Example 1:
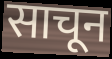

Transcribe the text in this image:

साचून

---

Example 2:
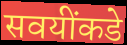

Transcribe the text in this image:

सवयींकडे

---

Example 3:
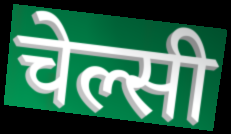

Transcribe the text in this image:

चेल्सी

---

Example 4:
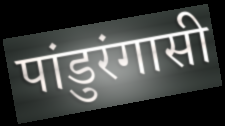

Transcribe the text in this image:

पांडुरंगासी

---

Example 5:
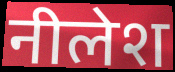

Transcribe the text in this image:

नीलेश